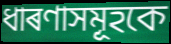
ধাৰণাসমূহকে